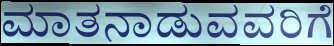
ಮಾತನಾಡುವವರಿಗೆ